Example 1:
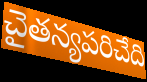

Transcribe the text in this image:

చైతన్యపరిచేది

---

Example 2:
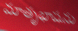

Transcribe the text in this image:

మాతృభాషను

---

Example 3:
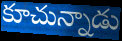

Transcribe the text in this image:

కూచున్నాడు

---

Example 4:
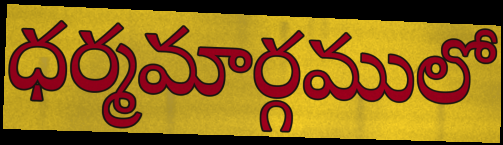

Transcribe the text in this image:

ధర్మమార్గములో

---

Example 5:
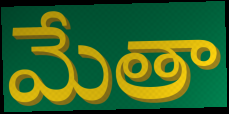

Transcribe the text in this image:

మేతా